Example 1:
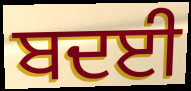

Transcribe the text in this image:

ਬਦਈ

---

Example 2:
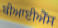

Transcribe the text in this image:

ਬੀਆਈਐੱਸ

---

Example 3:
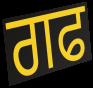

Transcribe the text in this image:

ਗਫ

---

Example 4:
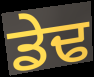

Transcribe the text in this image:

ਡੇਢ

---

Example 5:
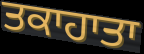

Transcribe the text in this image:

ਤਕਾਹਾਤਾ